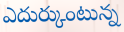
ఎదుర్కుంటున్న